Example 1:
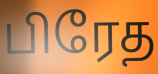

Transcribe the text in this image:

பிரேத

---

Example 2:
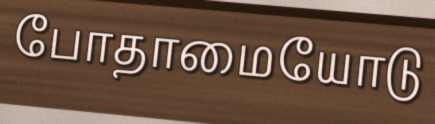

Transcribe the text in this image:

போதாமையோடு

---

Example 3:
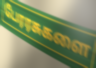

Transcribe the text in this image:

பேரரசுகளை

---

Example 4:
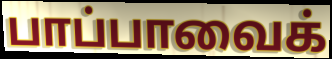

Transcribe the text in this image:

பாப்பாவைக்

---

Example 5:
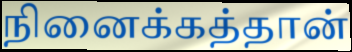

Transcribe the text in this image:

நினைக்கத்தான்